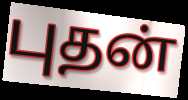
புதன்